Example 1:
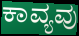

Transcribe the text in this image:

ಕಾವ್ಯವು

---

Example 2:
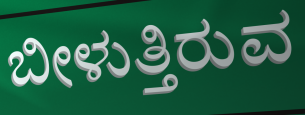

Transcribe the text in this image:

ಬೀಳುತ್ತಿರುವ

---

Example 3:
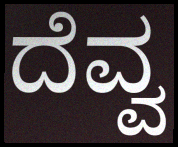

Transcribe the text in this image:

ದೆವ್ವ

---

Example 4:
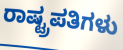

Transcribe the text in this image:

ರಾಷ್ಟ್ರಪತಿಗಳು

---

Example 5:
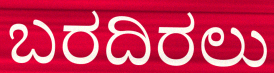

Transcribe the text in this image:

ಬರದಿರಲು